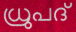
ധ്രുപദ്